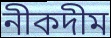
নীকদীম